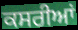
ਕਸਰੀਆਂ